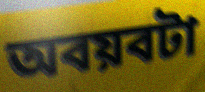
অবয়বটা